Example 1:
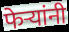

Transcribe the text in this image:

फेऱ्यांनी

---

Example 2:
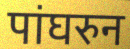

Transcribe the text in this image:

पांघरुन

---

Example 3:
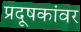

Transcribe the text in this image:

प्रदूषकांवर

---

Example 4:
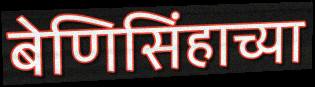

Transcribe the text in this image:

बेणिसिंहाच्या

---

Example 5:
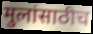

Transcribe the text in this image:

मुलांसाठीच